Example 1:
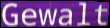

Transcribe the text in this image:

Gewalt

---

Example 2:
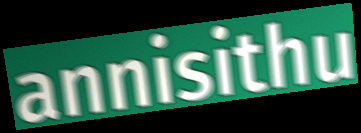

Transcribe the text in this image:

annisithu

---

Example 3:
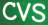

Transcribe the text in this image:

CVS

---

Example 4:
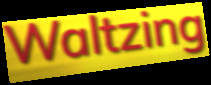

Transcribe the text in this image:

Waltzing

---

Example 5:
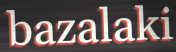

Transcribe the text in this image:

bazalaki